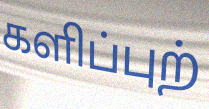
களிப்புற்